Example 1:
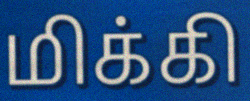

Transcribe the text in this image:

மிக்கி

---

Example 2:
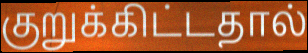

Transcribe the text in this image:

குறுக்கிட்டதால்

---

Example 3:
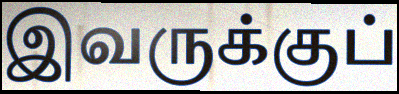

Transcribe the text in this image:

இவருக்குப்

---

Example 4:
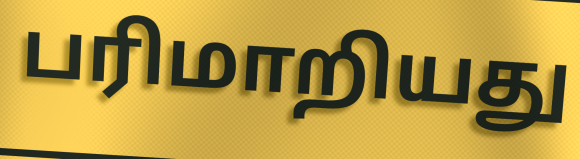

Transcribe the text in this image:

பரிமாறியது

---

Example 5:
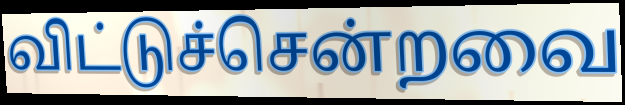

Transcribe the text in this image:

விட்டுச்சென்றவை